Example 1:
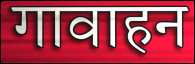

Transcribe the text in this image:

गावाहन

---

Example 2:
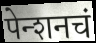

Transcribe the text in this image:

पेन्शनचं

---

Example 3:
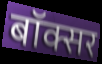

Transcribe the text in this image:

बॉक्सर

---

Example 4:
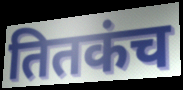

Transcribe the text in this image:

तितकंच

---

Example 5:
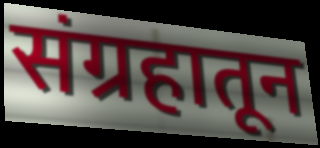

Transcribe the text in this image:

संग्रहातून